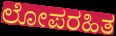
ಲೋಪರಹಿತ